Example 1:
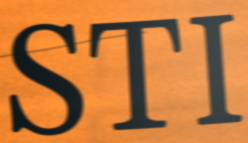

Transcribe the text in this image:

STI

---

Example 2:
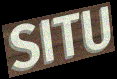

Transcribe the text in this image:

SITU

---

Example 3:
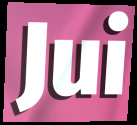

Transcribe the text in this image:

Jui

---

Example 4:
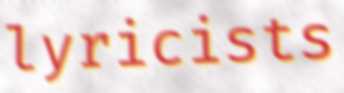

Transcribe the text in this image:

lyricists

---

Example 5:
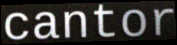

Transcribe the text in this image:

cantor